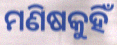
ମଣିଷକୁହିଁ